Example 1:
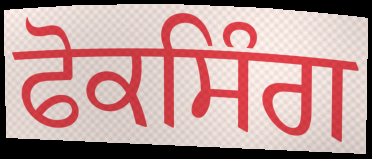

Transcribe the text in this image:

ਫੋਕਸਿੰਗ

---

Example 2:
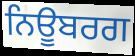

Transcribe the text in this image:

ਨਿਊਬਰਗ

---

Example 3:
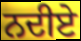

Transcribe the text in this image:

ਨਦੀਏ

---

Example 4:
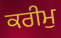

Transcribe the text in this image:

ਕਰੀਮੁ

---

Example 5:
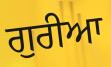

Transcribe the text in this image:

ਗੁਰੀਆ